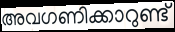
അവഗണിക്കാറുണ്ട്